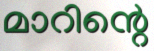
മാറിന്റെ